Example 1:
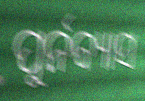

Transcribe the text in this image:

ପୁର୍ନବ୍ୟାସ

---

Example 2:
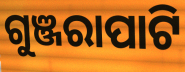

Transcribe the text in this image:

ଗୁଞ୍ଜରାପାଟି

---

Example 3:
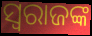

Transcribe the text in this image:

ସ୍ୱରାଜଙ୍କ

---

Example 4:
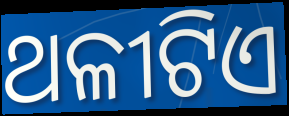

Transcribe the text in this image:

ଥଳୀଟିଏ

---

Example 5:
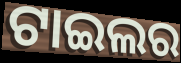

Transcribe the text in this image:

ଟାଇଲର